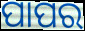
ପାପର